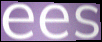
ees